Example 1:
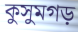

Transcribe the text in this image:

কুসুমগড়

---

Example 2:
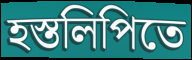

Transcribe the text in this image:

হস্তলিপিতে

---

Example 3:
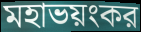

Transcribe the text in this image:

মহাভয়ংকর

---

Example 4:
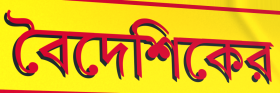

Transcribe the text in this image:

বৈদেশিকের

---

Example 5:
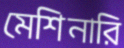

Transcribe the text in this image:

মেশিনারি